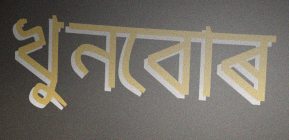
খুনবোৰ